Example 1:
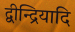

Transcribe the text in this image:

द्वीन्द्रियादि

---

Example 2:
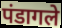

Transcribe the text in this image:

पंडागले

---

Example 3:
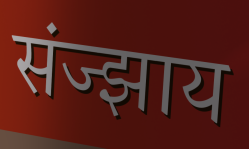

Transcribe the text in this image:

संज्झाय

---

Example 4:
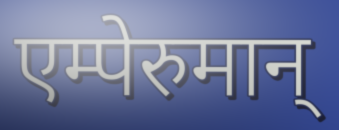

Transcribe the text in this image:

एम्पेरुमान्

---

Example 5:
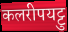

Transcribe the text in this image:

कलरीपयट्टु